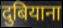
दुबियाना